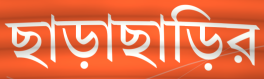
ছাড়াছাড়ির